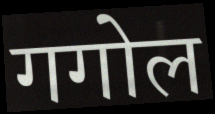
गगोल